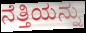
ನೆತ್ತಿಯನ್ನು